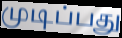
முடிப்பது